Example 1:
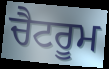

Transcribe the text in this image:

ਚੈਟਰੂਮ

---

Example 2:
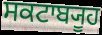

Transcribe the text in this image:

ਸਕਟਾਬ੍ਯੂਹ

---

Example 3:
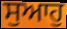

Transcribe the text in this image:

ਸੁਆਹੁ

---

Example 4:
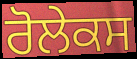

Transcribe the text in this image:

ਰੋਲੇਕਸ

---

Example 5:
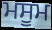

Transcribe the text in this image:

ਮਸੂਮ